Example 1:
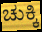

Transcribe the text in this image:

ಚುಕ್ಕಿ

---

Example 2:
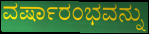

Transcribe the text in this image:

ವರ್ಷಾರಂಭವನ್ನು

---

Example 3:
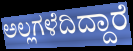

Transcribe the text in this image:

ಅಲ್ಲಗಳೆದಿದ್ದಾರೆ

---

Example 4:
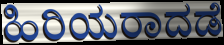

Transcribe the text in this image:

ಹಿರಿಯರಾದಡೆ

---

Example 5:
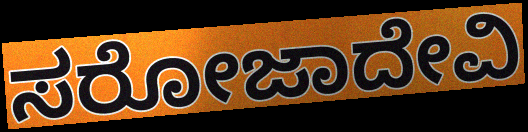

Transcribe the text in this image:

ಸರೋಜಾದೇವಿ